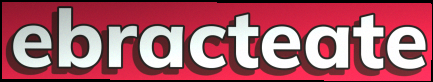
ebracteate